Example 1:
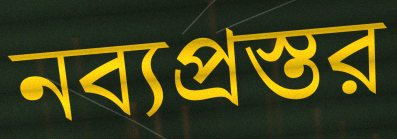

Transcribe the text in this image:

নব্যপ্রস্তর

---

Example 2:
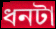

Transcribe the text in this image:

ধনটা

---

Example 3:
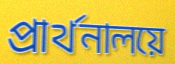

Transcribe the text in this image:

প্রার্থনালয়ে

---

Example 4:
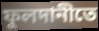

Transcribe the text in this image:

ফুলদানীতে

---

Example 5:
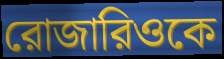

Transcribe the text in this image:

রোজারিওকে